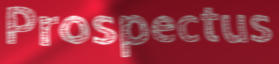
Prospectus